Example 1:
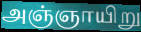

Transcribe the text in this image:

அஞ்ஞாயிறு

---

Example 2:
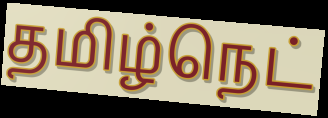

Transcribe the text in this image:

தமிழ்நெட்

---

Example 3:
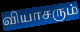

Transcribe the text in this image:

வியாசரும்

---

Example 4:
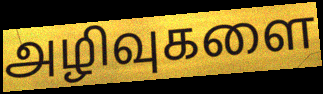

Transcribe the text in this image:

அழிவுகளை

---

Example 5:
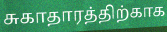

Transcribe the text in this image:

சுகாதாரத்திற்காக